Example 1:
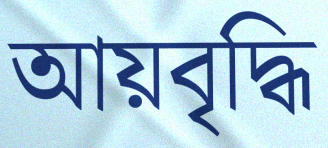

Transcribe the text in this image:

আয়বৃদ্ধি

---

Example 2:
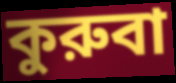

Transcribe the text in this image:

কুরুবা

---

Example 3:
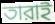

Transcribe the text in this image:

তারাই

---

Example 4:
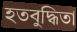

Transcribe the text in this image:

হতবুদ্ধিতা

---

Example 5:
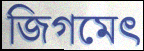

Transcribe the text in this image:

জিগমেৎ